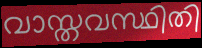
വാസ്തവസ്ഥിതി